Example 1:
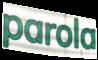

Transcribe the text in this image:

parola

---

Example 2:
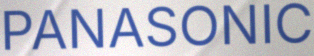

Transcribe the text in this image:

PANASONIC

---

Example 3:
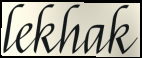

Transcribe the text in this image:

lekhak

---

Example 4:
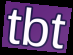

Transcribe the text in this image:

tbt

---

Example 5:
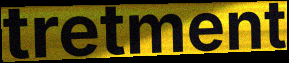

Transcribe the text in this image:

tretment